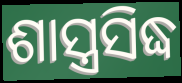
ଶାସ୍ତ୍ରସିଦ୍ଧ